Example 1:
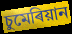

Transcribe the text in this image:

চুমেৰিয়ান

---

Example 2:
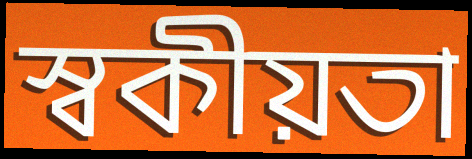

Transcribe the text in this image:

স্বকীয়তা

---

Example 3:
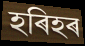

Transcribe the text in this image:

হৰিহৰ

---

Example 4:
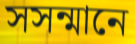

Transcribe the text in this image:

সসন্মানে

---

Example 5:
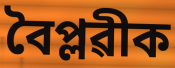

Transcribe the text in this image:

বৈপ্লৱীক